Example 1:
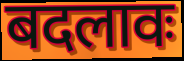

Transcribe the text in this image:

बदलावः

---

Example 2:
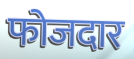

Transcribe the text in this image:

फोजदार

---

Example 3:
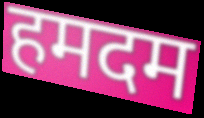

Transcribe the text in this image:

हमदम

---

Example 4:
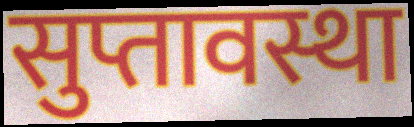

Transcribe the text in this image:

सुप्तावस्था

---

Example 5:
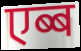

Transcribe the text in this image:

एब्ब